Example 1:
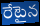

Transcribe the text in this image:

రేటైన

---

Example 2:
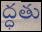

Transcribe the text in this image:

ద్ధతు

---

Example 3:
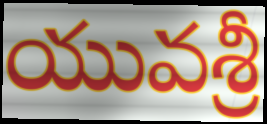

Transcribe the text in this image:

యువశ్రీ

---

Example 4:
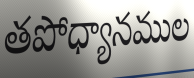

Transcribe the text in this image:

తపోధ్యానముల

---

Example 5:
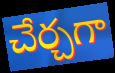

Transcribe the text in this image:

చేర్చగా